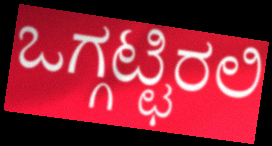
ಒಗ್ಗಟ್ಟಿರಲಿ